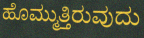
ಹೊಮ್ಮುತ್ತಿರುವುದು